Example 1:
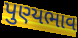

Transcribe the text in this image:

પુણ્યભાવ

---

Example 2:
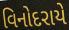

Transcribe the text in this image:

વિનોદરાયે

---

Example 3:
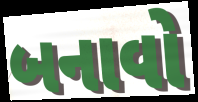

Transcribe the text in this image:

બનાવો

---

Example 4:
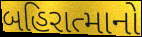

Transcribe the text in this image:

બહિરાત્માનો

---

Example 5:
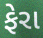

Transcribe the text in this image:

ફેરા